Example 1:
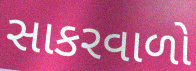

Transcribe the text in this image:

સાકરવાળો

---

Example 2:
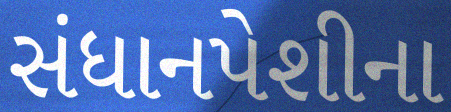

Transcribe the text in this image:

સંધાનપેશીના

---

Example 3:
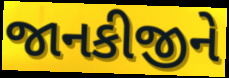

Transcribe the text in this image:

જાનકીજીને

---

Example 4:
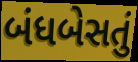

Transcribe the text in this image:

બંધબેસતું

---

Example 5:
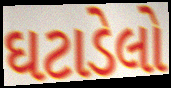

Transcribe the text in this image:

ઘટાડેલો